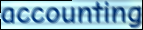
accounting